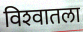
विश्‍वातला